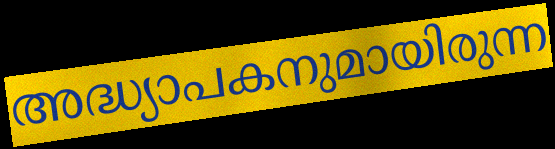
അദ്ധ്യാപകനുമായിരുന്ന